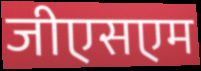
जीएसएम